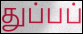
துப்பப்